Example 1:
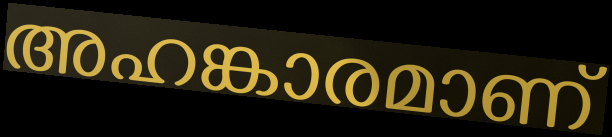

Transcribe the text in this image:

അഹങ്കാരമാണ്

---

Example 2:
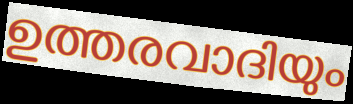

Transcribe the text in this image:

ഉത്തരവാദിയും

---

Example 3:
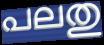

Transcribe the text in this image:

പലതു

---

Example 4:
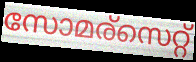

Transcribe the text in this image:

സോമര്സെറ്റ്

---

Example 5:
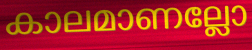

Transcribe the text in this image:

കാലമാണല്ലോ